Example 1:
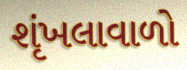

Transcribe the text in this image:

શૃંખલાવાળો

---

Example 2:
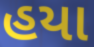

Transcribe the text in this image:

હયા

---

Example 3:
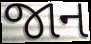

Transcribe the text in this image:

જાન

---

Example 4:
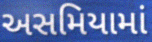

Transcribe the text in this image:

અસમિયામાં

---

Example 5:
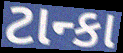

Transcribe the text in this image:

ટાન્કા